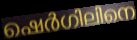
ഷെർഗിലിനെ